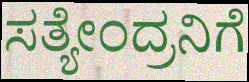
ಸತ್ಯೇಂದ್ರನಿಗೆ